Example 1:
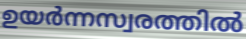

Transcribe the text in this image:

ഉയർന്നസ്വരത്തിൽ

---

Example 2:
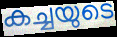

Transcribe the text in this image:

കച്ചയുടെ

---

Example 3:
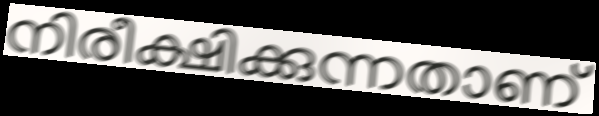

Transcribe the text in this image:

നിരീക്ഷിക്കുന്നതാണ്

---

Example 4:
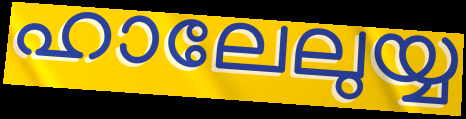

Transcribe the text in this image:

ഹാലേലുയ്യ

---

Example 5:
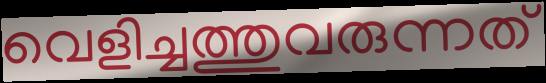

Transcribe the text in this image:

വെളിച്ചത്തുവരുന്നത്